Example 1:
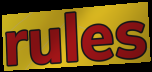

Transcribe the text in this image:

rules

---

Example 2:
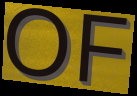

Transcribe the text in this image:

OF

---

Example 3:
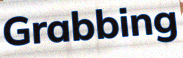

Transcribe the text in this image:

Grabbing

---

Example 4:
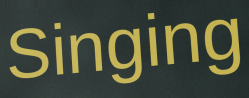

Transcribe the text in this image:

Singing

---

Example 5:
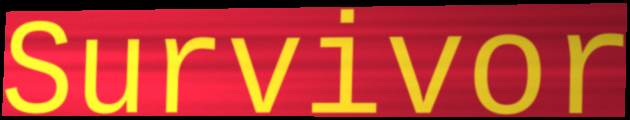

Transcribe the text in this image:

Survivor